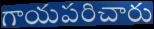
గాయపరిచారు